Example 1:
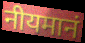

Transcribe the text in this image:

नीयमानं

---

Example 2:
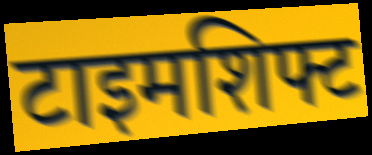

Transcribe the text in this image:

टाइमशिफ्ट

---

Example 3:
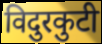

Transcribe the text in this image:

विदुरकुटी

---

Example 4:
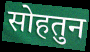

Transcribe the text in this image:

सोहतुन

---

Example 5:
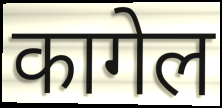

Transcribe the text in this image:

कागेल